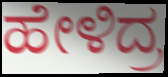
ಹೇಳಿದ್ರ